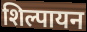
शिल्पायन